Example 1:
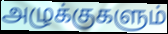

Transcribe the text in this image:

அழுக்குகளும்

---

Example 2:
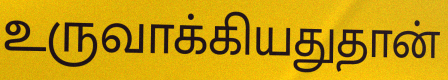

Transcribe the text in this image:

உருவாக்கியதுதான்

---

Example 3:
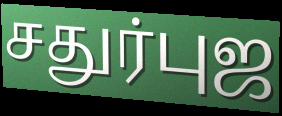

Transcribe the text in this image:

சதுர்புஜ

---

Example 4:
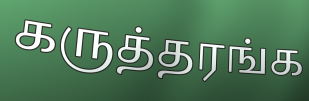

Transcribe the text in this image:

கருத்தரங்க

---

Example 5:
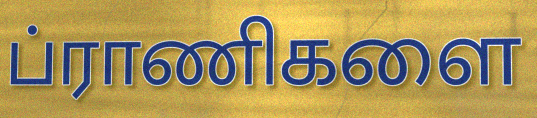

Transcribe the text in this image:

ப்ராணிகளை